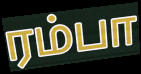
ரம்பா